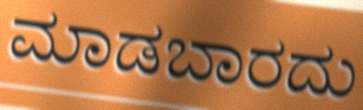
ಮಾಡಬಾರದು